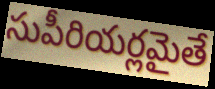
సుపీరియర్లమైతే